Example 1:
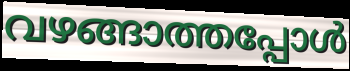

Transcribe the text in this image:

വഴങ്ങാത്തപ്പോൾ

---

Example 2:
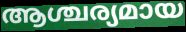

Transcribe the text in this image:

ആശ്ചര്യമായ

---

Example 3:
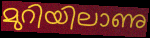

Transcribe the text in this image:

മുറിയിലാണു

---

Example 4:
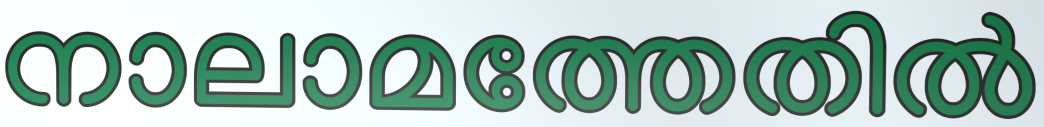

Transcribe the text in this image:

നാലാമത്തേതിൽ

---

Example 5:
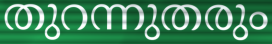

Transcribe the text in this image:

തുറന്നുതരും